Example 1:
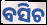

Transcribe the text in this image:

ବସିଚ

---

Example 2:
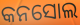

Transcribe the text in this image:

କନସୋଲ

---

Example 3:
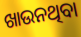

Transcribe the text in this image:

ଖାଉନଥିବା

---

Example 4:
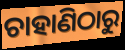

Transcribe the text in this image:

ଚାହାଣିଠାରୁ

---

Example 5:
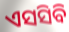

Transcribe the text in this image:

ଏସସିବି